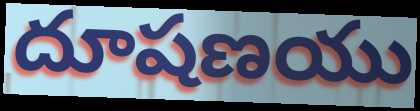
దూషణయు